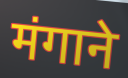
मंगाने